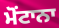
ਮੋਂਟਾਨਾ